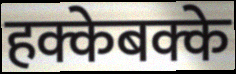
हक्केबक्के